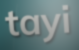
tayi